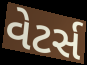
વેટર્સ